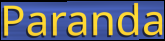
Paranda